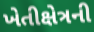
ખેતીક્ષેત્રની